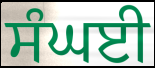
ਸੰਘਈ